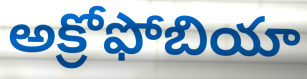
అక్రోఫోబియా